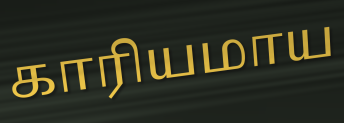
காரியமாய